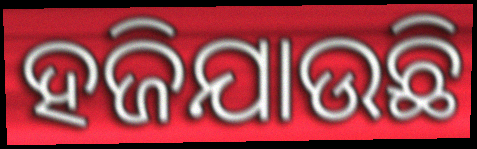
ହଜିଯାଉଛି